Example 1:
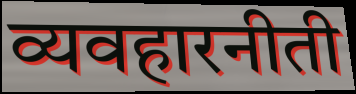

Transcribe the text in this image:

व्यवहारनीती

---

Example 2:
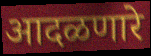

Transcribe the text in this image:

आदळणारे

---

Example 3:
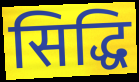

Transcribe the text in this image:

सिद्धि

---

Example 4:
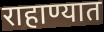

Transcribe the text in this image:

राहाण्यात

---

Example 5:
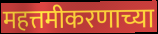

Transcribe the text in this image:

महत्तमीकरणाच्या